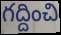
గద్దించి